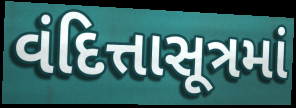
વંદિત્તાસૂત્રમાં